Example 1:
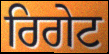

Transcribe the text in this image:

ਰਿਗੇਟ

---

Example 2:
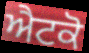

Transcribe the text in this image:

ਐਟਕੋ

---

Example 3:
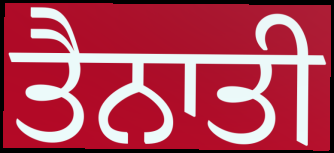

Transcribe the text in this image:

ਤੈਨਾਤੀ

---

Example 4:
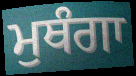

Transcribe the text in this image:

ਮੁਥੰਗਾ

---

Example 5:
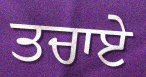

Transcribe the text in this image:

ਤਚਾਏ